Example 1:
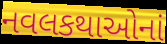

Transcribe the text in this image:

નવલકથાઓનાં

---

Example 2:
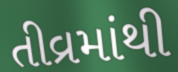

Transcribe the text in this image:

તીવ્રમાંથી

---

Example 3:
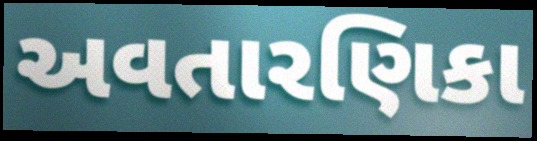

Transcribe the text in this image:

અવતારણિકા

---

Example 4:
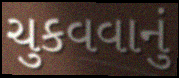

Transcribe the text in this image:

ચુકવવાનું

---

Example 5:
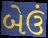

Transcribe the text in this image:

બેઉં